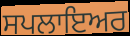
ਸਪਲਾਇਅਰ